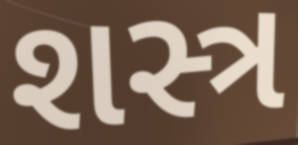
શસ્ત્ર